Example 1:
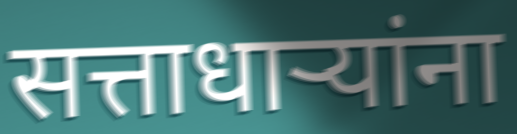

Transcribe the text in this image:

सत्ताधाऱ्यांना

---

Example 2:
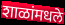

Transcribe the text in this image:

शाळांमधले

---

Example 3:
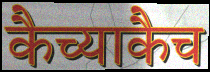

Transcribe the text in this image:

कैच्याकैच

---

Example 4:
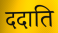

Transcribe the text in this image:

ददाति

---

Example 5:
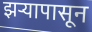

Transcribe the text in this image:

झऱ्यापासून